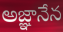
అజ్ఞానేన